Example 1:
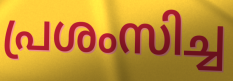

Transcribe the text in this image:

പ്രശംസിച്ച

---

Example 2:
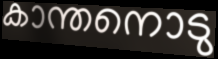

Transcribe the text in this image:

കാന്തനൊടു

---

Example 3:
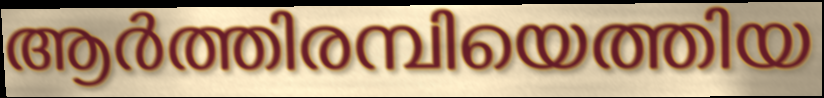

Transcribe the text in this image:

ആർത്തിരമ്പിയെത്തിയ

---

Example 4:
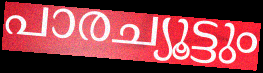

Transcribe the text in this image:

പാരച്യൂട്ടും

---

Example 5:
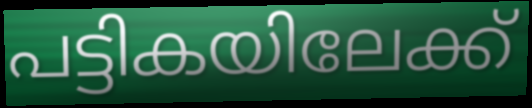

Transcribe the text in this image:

പട്ടികയിലേക്ക്